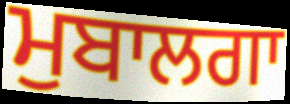
ਮੁਬਾਲਗਾ